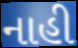
નાહી